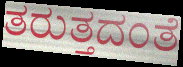
ತರುತ್ತದಂತೆ